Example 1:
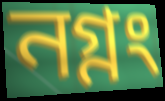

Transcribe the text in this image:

নগ্নং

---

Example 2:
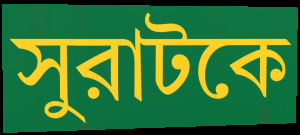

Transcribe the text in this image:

সুরাটকে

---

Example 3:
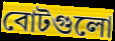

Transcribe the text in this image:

বোটগুলো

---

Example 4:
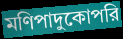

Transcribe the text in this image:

মণিপাদুকোপরি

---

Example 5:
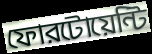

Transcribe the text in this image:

ফোরটোয়েন্টি